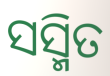
ସସ୍ମିତ